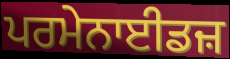
ਪਰਮੇਨਾਈਡਜ਼